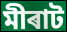
মীৰাট